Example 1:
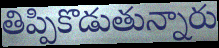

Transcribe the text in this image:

తిప్పికొడుతున్నారు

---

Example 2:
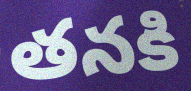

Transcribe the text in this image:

తనకి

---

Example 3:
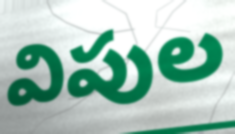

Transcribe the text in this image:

విపుల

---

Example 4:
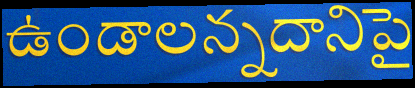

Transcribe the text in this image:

ఉండాలన్నదానిపై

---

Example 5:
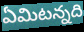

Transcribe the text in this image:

ఏమిటన్నది